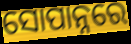
ସୋପାନ୍ନରେ